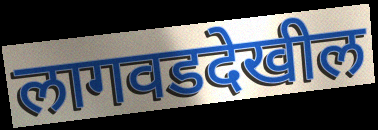
लागवडदेखील